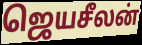
ஜெயசீலன்